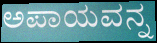
ಅಪಾಯವನ್ನ